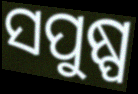
ସପୁଷ୍ପ